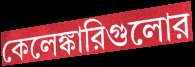
কেলেঙ্কারিগুলোর